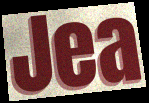
Jea